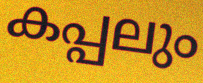
കപ്പലും